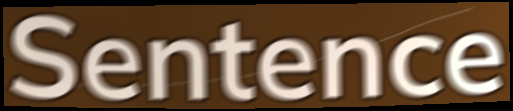
Sentence